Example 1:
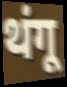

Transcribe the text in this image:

थंगू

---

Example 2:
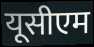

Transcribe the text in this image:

यूसीएम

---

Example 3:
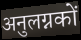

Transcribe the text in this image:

अनुलग्नकों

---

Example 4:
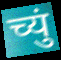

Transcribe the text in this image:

च्युं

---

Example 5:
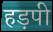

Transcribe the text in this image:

हड़पी